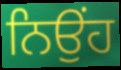
ਨਿਉਂਹ